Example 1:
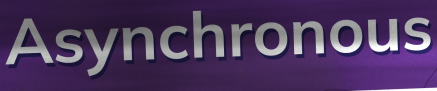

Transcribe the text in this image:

Asynchronous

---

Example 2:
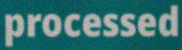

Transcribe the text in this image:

processed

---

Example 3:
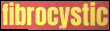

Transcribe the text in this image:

fibrocystic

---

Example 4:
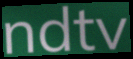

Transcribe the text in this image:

ndtv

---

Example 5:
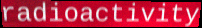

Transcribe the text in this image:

radioactivity